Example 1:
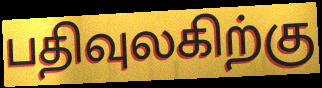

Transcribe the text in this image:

பதிவுலகிற்கு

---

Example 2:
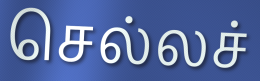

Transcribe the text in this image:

செல்லச்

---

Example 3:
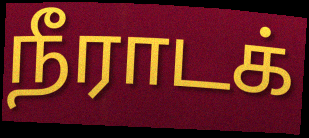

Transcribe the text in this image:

நீராடக்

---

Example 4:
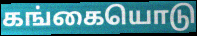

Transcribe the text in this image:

கங்கையொடு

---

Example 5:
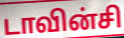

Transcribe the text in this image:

டாவின்சி